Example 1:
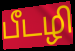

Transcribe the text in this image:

பீடழி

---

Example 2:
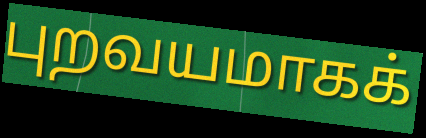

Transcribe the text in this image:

புறவயமாகக்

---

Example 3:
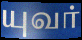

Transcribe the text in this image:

யுவர்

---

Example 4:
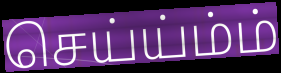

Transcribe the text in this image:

செய்ய்ம்ம்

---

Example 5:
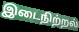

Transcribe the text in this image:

இடைநிற்றல்